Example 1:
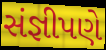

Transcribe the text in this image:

સંજ્ઞીપણે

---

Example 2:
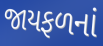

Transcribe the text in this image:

જાયફળનાં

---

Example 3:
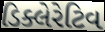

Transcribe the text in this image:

ડિક્લેરેટિવ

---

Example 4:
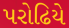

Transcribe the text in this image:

પરોઢિયે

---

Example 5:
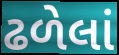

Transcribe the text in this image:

ઢળેલાં